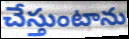
చేస్తుంటాను